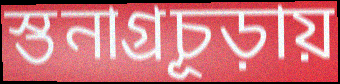
স্তনাগ্রচূড়ায়